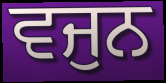
ਵਜੁਨ